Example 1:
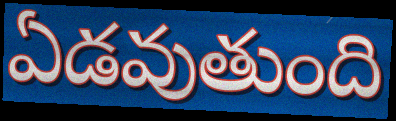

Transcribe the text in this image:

ఏడవుతుంది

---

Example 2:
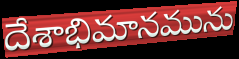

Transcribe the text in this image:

దేశాభిమానమును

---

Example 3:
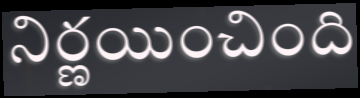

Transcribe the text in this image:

నిర్ణయించింది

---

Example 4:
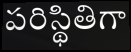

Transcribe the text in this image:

పరిస్థితిగా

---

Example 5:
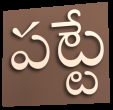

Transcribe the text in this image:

పట్టే